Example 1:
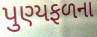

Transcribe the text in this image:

પુણ્યફળના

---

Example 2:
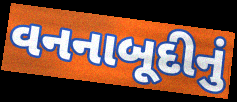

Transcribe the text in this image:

વનનાબૂદીનું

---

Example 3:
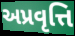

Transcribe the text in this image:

અપ્રવૃત્તિ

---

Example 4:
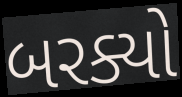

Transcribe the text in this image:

બરક્યો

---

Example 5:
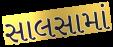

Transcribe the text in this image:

સાલસામાં